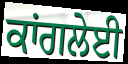
ਕਾਂਗਲੇਈ